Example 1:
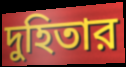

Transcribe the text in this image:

দুহিতার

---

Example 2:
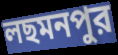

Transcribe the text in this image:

লছমনপুর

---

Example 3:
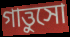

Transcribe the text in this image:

গাত্তুসো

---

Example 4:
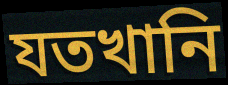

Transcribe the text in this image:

যতখানি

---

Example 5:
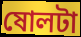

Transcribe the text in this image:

ষোলটা